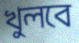
খুলবে